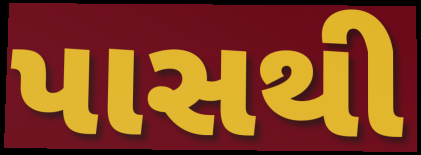
પાસથી